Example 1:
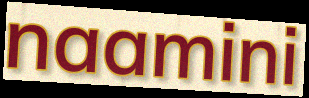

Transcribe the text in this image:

naamini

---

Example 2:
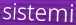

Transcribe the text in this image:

sistemi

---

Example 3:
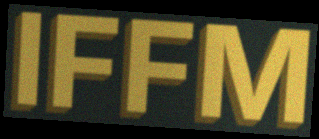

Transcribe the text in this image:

IFFM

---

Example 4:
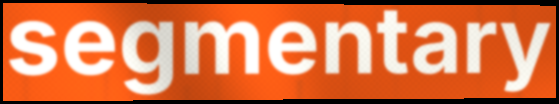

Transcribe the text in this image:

segmentary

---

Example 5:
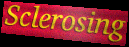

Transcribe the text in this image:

Sclerosing